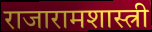
राजारामशास्त्री